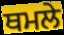
ਥਮਲੇ